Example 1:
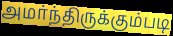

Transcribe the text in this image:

அமர்ந்திருக்கும்படி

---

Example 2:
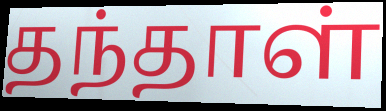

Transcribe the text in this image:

தந்தாள்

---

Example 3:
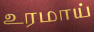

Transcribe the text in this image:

உரமாய்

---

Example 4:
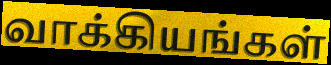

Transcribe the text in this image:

வாக்கியங்கள்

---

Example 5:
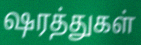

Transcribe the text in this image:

ஷரத்துகள்